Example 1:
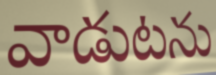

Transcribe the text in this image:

వాడుటను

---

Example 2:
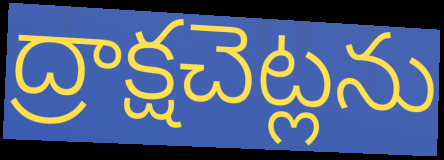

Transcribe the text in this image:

ద్రాక్షచెట్లను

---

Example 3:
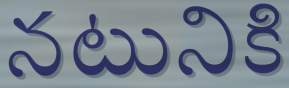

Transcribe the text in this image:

నటునికి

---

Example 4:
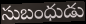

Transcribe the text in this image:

సుబంధుడు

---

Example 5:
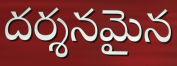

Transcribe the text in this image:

దర్శనమైన